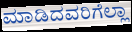
ಮಾಡಿದವರಿಗೆಲ್ಲಾ